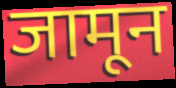
जामून